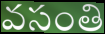
వసంతి